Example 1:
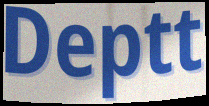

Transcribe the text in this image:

Deptt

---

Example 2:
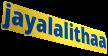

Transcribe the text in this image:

jayalalithaa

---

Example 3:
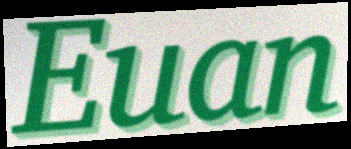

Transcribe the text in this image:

Euan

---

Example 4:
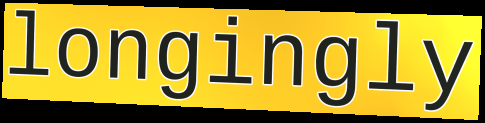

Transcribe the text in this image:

longingly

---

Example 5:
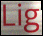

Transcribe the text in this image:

Lig